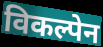
विकल्पेन